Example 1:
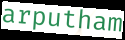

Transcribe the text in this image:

arputham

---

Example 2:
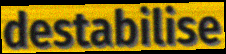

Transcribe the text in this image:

destabilise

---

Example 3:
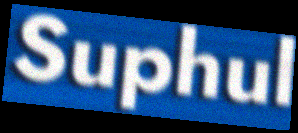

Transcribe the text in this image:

Suphul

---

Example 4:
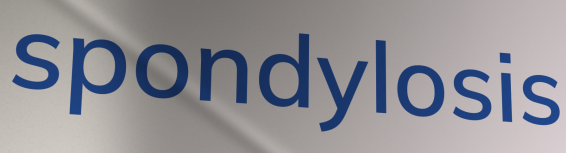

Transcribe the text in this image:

spondylosis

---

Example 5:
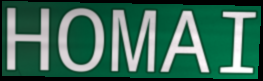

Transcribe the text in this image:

HOMAI